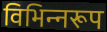
विभिन्नरूप